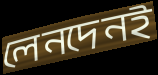
লেনদেনই